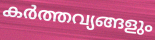
കർത്തവ്യങ്ങളും